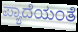
ಪ್ಯಾದೆಯಂತೆ